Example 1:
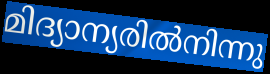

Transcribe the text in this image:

മിദ്യാന്യരിൽനിന്നു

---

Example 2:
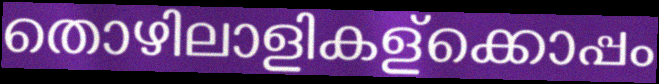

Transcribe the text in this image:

തൊഴിലാളികള്ക്കൊപ്പം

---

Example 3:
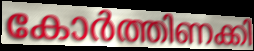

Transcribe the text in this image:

കോർത്തിണക്കി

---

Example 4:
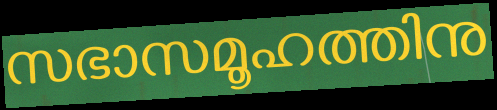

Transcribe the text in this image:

സഭാസമൂഹത്തിനു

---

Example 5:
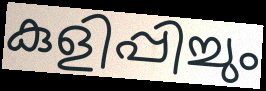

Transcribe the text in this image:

കുളിപ്പിച്ചും